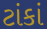
ટાંકાં